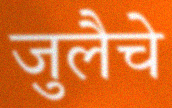
जुलैचे